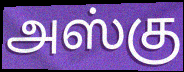
அஸ்கு